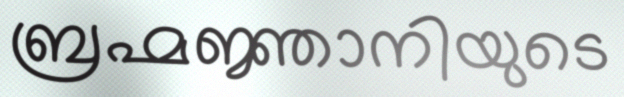
ബ്രഹ്മജ്ഞാനിയുടെ